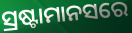
ସ୍ରଷ୍ଟାମାନସରେ